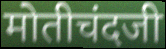
मोतीचंदजी